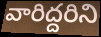
వారిద్దరిని